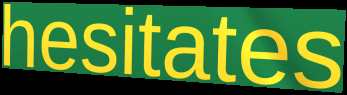
hesitates